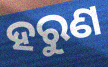
ହରୁଣ